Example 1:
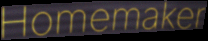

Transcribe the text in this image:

Homemaker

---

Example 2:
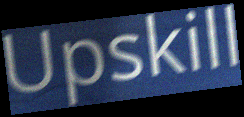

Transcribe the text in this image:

Upskill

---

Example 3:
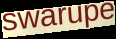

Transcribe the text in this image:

swarupe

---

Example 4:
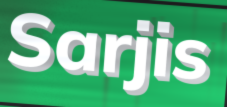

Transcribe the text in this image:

Sarjis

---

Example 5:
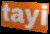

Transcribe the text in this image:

tayi